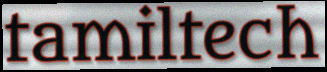
tamiltech